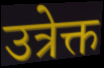
उत्रेक्त